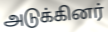
அடுக்கினர்